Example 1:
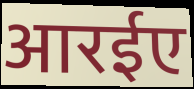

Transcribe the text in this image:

आरईए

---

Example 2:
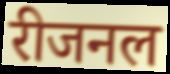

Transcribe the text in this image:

रीजनल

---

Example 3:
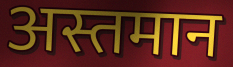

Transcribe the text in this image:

अस्तमान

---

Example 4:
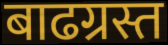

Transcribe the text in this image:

बाढग्रस्त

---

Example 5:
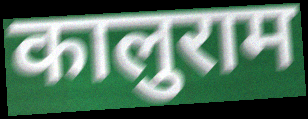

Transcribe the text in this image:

कालुराम